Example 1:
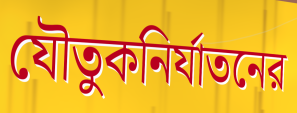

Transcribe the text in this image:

যৌতুকনির্যাতনের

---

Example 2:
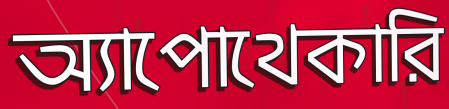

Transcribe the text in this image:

অ্যাপোথেকারি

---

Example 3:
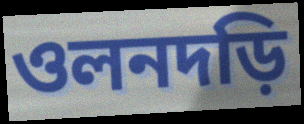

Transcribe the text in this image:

ওলনদড়ি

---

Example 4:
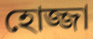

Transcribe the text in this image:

হোজ্জা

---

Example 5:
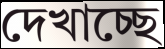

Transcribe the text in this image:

দেখাচ্ছে